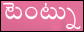
టెంట్ను